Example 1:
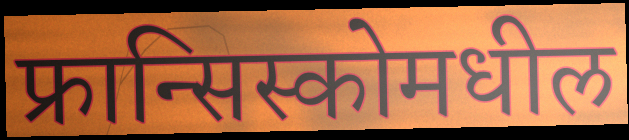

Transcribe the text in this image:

फ्रान्सिस्कोमधील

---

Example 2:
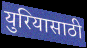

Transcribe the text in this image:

युरियासाठी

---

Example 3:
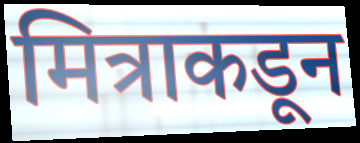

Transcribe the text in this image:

मित्राकडून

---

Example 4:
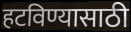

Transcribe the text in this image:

हटविण्यासाठी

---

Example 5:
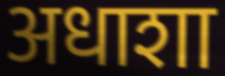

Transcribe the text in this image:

अधाशा